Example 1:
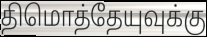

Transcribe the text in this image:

திமொத்தேயுவுக்கு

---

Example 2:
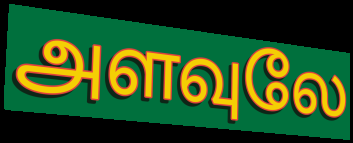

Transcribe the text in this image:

அளவுலே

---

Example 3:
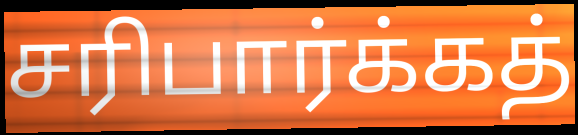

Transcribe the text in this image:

சரிபார்க்கத்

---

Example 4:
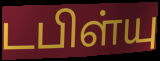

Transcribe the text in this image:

டபிள்யு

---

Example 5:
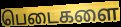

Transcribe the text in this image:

பெடைகளை